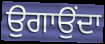
ਉਗਾਉਂਦਾ